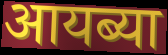
आयब्या